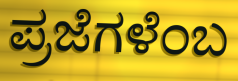
ಪ್ರಜೆಗಳೆಂಬ